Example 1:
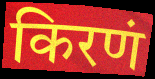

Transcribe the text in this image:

किरणं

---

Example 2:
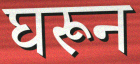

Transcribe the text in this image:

घरून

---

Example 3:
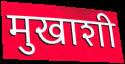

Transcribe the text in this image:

मुखाशी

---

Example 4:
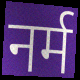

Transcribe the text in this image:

नर्म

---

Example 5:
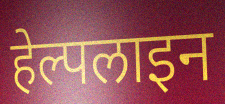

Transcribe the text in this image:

हेल्पलाइन